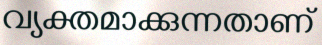
വ്യക്തമാക്കുന്നതാണ്